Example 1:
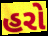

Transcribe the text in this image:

હરો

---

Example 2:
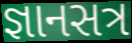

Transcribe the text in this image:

જ્ઞાનસત્ર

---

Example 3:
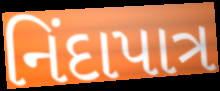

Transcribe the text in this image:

નિંદાપાત્ર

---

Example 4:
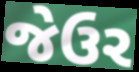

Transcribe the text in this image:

જેઉર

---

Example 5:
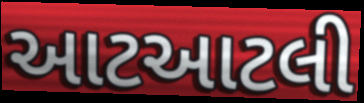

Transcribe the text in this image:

આટઆટલી